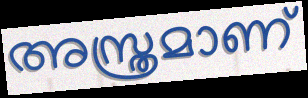
അസ്ത്രമാണ്